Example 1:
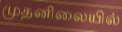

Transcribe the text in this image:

முதனிலையில்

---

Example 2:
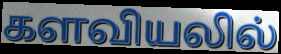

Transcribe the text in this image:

களவியலில்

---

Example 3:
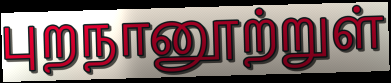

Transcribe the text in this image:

புறநானூற்றுள்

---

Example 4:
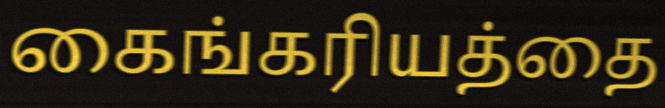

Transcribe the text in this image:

கைங்கரியத்தை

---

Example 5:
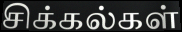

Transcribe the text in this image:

சிக்கல்கள்